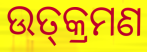
ଉତ୍‍କ୍ରମଣ